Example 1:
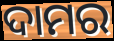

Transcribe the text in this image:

ଦାମର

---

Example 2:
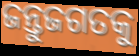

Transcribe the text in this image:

ଜନ୍ତୁଜଗତକୁ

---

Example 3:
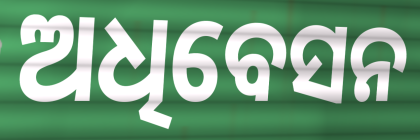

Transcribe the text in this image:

ଅଧିବେସନ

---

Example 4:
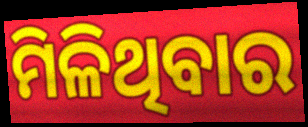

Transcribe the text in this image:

ମିଳିଥିବାର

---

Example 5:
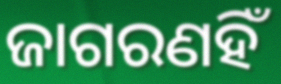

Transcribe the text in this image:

ଜାଗରଣହିଁ